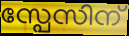
സ്പേസിന്